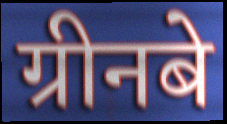
ग्रीनबे